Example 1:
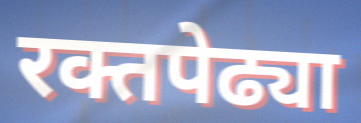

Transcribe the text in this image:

रक्तपेढ्या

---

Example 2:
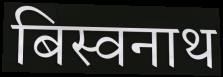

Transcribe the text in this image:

बिस्वनाथ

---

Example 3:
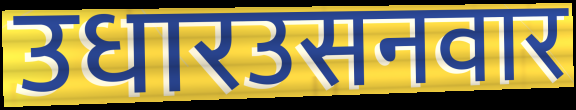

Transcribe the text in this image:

उधारउसनवार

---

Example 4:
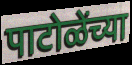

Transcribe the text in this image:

पाटोळेंच्या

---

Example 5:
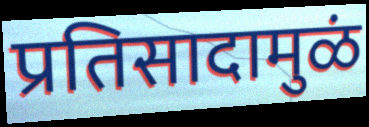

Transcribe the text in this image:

प्रतिसादामुळं